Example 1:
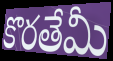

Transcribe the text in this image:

కొరతేమీ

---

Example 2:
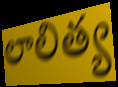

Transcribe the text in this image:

లాలిత్య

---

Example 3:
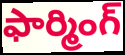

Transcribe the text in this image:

ఫార్మింగ్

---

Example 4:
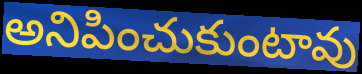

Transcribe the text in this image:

అనిపించుకుంటావు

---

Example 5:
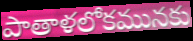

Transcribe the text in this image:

పాతాళలోకమునకు